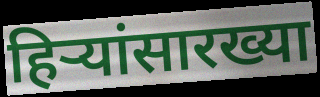
हिऱ्यांसारख्या